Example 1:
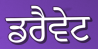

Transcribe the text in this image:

ਡਰੈਵੇਟ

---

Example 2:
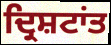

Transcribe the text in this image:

ਦ੍ਰਿਸ਼ਟਾਂਤ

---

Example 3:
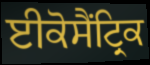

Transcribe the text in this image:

ਈਕੋਸੈਂਟ੍ਰਿਕ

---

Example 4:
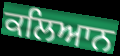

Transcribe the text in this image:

ਕਲਿਆਨ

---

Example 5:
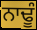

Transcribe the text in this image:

ਨਾਢੂੰ